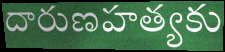
దారుణహత్యకు